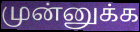
முன்னுக்க